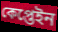
কেপ্তেইন